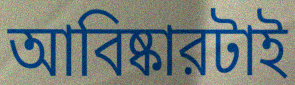
আবিষ্কারটাই